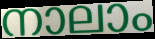
നാലാം